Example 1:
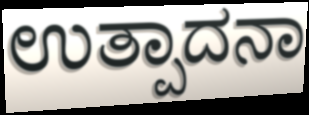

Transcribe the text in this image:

ಉತ್ಪಾದನಾ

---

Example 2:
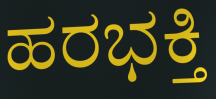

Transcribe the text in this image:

ಹರಭಕ್ತಿ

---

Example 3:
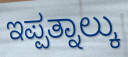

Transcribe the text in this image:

ಇಪ್ಪತ್ನಾಲ್ಕು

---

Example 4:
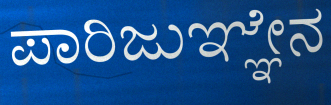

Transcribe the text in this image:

ಪಾರಿಜುಞ್ಞೇನ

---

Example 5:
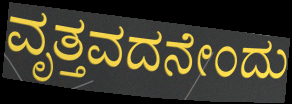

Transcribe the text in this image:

ವೃತ್ತವದನೇಂದು